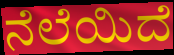
ನೆಲೆಯಿದೆ